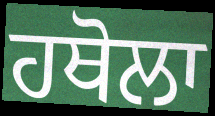
ਹਥੋਲਾ